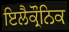
ਇਲੈਕ੍ਰੌਨਿਕ